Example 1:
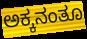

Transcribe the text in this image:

ಅಕ್ಕನಂತೂ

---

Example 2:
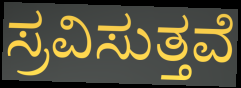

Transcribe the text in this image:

ಸ್ರವಿಸುತ್ತವೆ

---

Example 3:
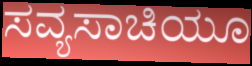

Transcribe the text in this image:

ಸವ್ಯಸಾಚಿಯೂ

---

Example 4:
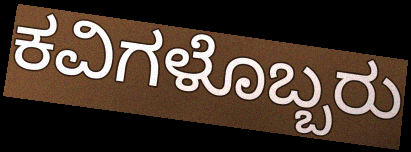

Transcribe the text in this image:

ಕವಿಗಳೊಬ್ಬರು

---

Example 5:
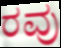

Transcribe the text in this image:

ರವು